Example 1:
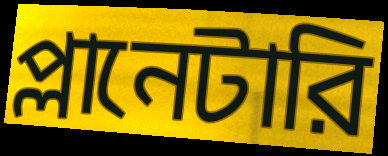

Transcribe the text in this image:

প্লানেটারি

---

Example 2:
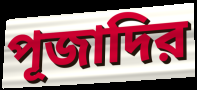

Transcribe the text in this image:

পূজাদির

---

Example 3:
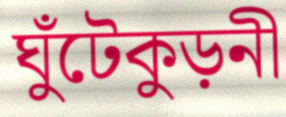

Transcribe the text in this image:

ঘুঁটেকুড়নী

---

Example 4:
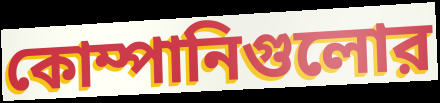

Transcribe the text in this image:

কোম্পানিগুলোর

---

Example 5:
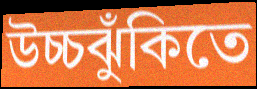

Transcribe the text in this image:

উচ্চঝুঁকিতে